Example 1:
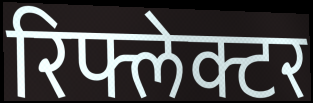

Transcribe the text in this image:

रिफ्लेक्टर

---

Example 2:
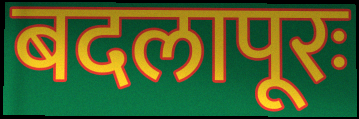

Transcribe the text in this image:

बदलापूरः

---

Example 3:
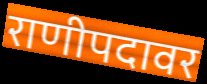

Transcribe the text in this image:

राणीपदावर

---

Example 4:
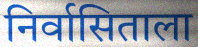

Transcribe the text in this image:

निर्वासिताला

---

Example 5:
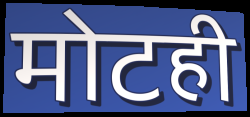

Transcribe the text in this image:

मोटही